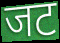
जट